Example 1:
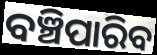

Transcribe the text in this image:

ବଞ୍ଚିପାରିବ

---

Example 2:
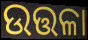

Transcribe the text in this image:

ଉତ୍ତଳା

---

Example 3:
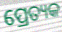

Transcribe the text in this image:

ପ୍ରେତ୍ୟକ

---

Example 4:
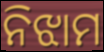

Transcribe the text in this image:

ନିଝାମ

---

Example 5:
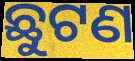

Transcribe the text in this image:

ଛୁଟଣ